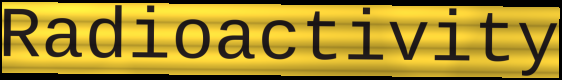
Radioactivity